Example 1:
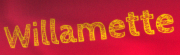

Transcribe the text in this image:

Willamette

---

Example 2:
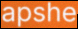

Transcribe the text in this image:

apshe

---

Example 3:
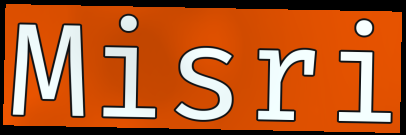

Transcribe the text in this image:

Misri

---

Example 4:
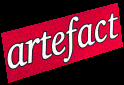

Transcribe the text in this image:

artefact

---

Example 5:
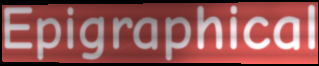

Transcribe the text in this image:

Epigraphical